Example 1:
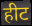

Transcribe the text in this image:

हीट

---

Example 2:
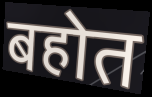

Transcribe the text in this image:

बहोत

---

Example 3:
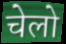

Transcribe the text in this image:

चेलो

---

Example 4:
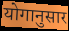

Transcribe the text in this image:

योगानुसार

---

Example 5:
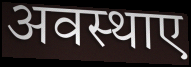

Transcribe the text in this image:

अवस्थाए